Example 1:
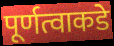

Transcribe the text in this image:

पूर्णत्वाकडे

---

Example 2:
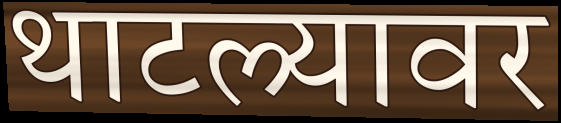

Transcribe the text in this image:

थाटल्यावर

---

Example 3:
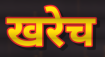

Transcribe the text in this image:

खरेच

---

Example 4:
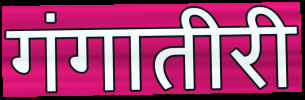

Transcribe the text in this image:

गंगातीरी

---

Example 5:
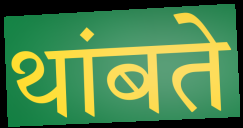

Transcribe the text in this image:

थांबते